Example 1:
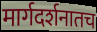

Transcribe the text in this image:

मार्गदर्शनातच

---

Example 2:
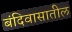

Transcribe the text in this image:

बंदिवासातील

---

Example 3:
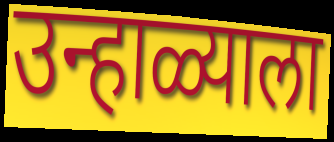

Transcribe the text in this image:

उन्हाळ्याला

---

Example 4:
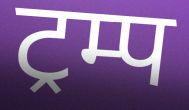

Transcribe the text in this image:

ट्रम्‍प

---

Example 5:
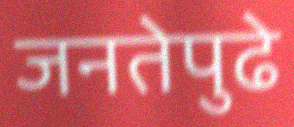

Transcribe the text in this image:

जनतेपुढे